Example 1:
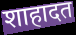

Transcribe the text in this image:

शाहादत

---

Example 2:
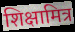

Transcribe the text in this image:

शिक्षामित्र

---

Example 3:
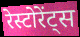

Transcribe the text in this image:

रेस्टोरेंट्स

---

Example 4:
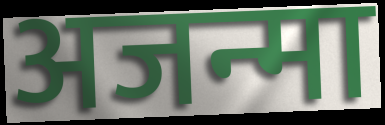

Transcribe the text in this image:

अजन्मा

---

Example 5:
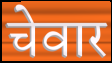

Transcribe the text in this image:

चेवार